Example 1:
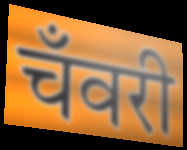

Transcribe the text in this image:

चँवरी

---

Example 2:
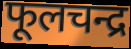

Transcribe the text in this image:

फूलचन्द्र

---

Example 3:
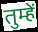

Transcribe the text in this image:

तुम्हें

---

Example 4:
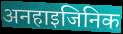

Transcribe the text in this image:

अनहाइजिनिक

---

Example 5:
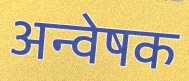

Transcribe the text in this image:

अन्वेषक